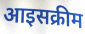
आइसक्रीम